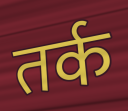
तर्क